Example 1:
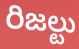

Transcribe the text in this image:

రిజల్టు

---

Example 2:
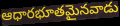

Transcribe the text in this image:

ఆధారభూతమైనవాడు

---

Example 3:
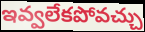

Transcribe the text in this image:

ఇవ్వలేకపోవచ్చు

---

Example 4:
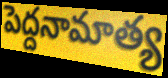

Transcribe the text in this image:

పెద్దనామాత్య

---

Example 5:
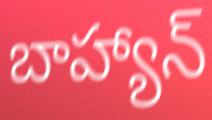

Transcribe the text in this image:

బాహ్యాన్